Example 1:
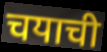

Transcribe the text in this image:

चयाची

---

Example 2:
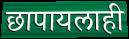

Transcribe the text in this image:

छापायलाही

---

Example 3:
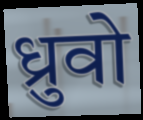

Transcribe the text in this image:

ध्रुवो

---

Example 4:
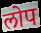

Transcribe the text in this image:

लोप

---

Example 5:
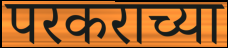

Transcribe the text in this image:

परकराच्या